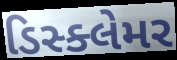
ડિસ્ક્લેમર